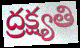
ద్రక్ష్యతి